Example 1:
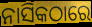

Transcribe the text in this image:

ନାସିକଠାରେ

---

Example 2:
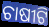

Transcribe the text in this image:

ଚାଷୀଟି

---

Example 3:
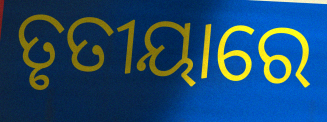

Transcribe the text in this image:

ତୃତୀୟାରେ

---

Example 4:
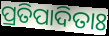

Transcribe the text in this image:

ପ୍ରତିପାଦିତାଃ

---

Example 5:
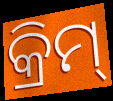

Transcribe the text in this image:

କ୍ରିମ୍